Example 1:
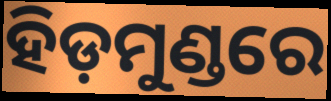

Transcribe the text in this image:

ହିଡ଼ମୁଣ୍ଡରେ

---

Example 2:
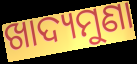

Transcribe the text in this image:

ଖାଦ୍ୟମୁଣା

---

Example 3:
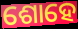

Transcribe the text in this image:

ଶୋହେ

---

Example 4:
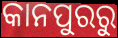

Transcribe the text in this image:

କାନପୁରରୁ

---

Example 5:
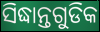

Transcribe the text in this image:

ସିଦ୍ଧାନ୍ତଗୁଡିକ